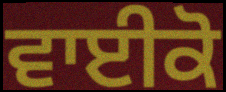
ਵਾਈਕੋ